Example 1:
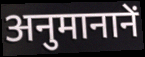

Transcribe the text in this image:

अनुमानानें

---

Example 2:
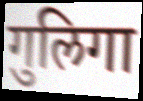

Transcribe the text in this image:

गुलिगा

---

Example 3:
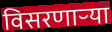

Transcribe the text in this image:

विसरणाऱ्या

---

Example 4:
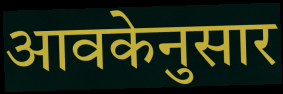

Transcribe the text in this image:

आवकेनुसार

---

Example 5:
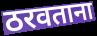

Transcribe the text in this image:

ठरवताना